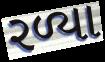
રળ્યા